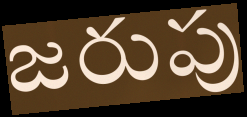
జరుపు